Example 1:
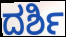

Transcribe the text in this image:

ದರ್ಶಿ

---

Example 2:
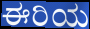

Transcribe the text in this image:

ಈರಿಯ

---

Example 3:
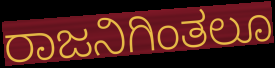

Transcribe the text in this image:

ರಾಜನಿಗಿಂತಲೂ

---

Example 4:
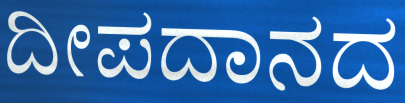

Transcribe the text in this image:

ದೀಪದಾನದ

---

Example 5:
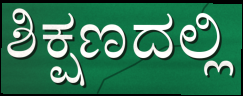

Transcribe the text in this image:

ಶಿಕ್ಷಣದಲ್ಲಿ